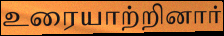
உரையாற்றினார்